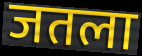
जतला